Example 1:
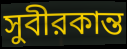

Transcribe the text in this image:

সুবীরকান্ত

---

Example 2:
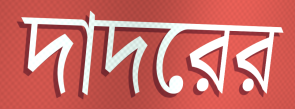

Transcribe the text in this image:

দাদরের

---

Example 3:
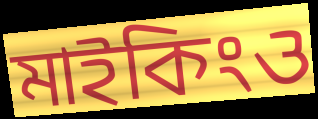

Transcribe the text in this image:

মাইকিংও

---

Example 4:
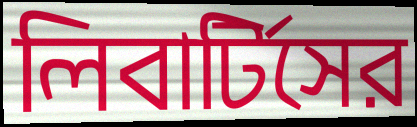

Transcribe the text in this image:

লিবার্টিসের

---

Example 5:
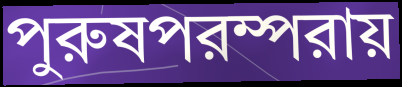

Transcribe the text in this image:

পুরুষপরম্পরায়